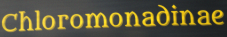
Chloromonadinae